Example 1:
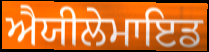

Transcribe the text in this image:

ਐਯੀਲੇਮਾਇਡ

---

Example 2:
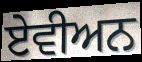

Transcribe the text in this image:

ਏਵੀਅਨ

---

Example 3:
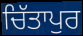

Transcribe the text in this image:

ਚਿੱਤਾਪੁਰ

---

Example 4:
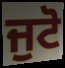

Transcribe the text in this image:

ਜੁਟੋ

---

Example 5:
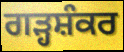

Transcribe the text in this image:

ਗੜ੍ਹਸ਼ੰਕਰ